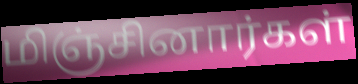
மிஞ்சினார்கள்